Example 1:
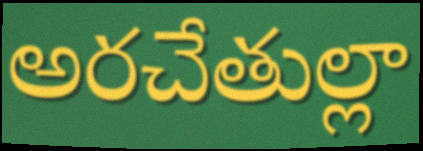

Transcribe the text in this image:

అరచేతుల్లా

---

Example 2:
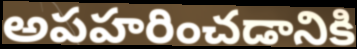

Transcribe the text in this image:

అపహరించడానికి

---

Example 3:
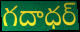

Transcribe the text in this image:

గదాధర్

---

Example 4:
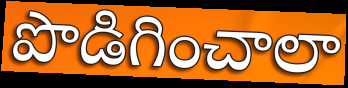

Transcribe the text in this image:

పొడిగించాలా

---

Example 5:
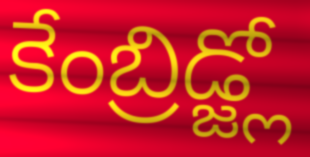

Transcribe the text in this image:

కేంబ్రిడ్జ్లో